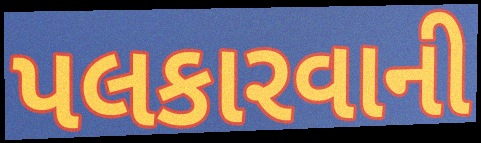
પલકારવાની